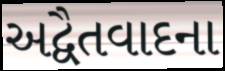
અદ્વૈતવાદના